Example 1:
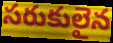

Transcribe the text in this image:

సరుకులైన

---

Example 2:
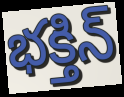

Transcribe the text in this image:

భక్తిన్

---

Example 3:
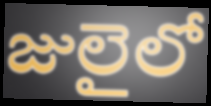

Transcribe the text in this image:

జులైలో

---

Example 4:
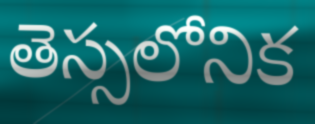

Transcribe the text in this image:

తెస్సలోనిక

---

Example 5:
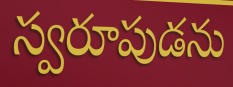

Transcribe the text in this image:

స్వరూపుడను